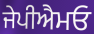
ਜੇਪੀਐਮਓ